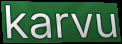
karvu